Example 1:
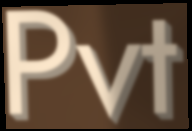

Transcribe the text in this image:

Pvt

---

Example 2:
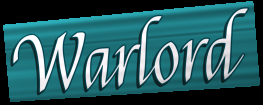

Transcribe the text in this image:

Warlord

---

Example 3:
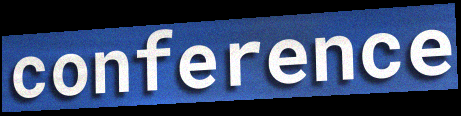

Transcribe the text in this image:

conference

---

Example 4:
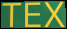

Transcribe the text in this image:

TEX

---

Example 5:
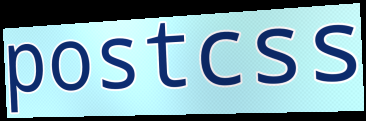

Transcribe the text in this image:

postcss